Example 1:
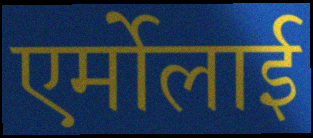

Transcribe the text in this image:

एर्मोलाई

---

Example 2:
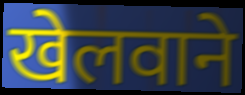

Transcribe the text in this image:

खेलवाने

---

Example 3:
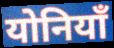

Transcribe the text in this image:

योनियाँ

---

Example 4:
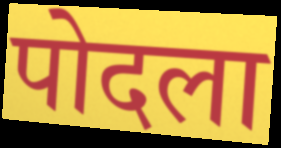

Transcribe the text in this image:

पोदला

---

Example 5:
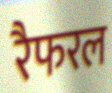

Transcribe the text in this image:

रैफरल